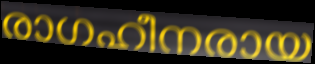
രാഗഹീനരായ